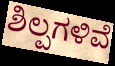
ಶಿಲ್ಪಗಳಿವೆ